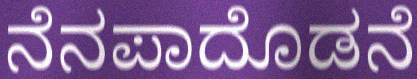
ನೆನಪಾದೊಡನೆ